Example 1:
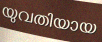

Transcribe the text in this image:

യുവതിയായ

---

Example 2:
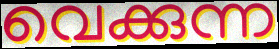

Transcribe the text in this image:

വെക്കുന്ന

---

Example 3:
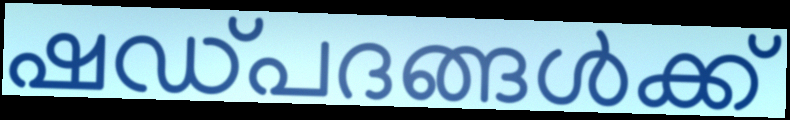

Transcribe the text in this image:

ഷഡ്പദങ്ങൾക്ക്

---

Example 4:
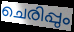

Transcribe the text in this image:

ചെരിപ്പും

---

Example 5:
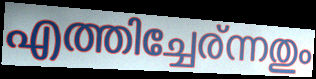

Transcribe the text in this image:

എത്തിച്ചേര്ന്നതും